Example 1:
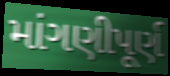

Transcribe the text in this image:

માંગણીપૂર્ણ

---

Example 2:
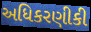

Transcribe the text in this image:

અધિકરણીકી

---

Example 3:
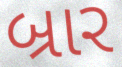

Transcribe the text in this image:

બ્રાર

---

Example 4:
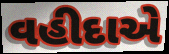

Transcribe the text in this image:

વહીદાએ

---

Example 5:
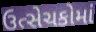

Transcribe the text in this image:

ઉત્સેચકોમાં